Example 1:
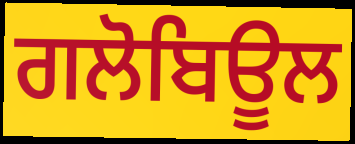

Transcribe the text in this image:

ਗਲੋਬਿਊਲ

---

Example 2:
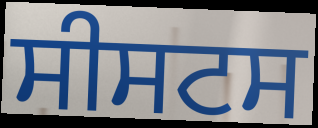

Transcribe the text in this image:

ਸੀਸਟਸ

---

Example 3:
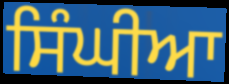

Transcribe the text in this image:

ਸਿੰਘੀਆ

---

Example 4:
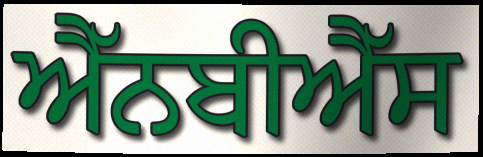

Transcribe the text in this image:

ਐੱਨਬੀਐੱਸ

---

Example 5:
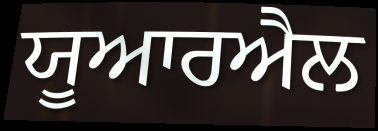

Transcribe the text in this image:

ਯੂਆਰਐਲ